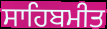
ਸਾਹਿਬਮੀਤ